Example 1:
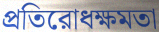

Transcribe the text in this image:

প্রতিরোধক্ষমতা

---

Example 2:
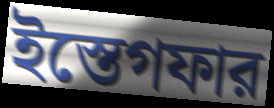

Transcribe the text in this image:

ইস্তেগফার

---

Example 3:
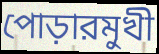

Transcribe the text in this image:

পোড়ারমুখী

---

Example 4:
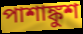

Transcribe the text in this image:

পাশাঙ্কুশ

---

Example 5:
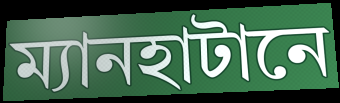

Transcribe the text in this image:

ম্যানহাটানে